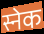
स्‍नेक